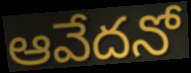
ఆవేదనో